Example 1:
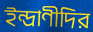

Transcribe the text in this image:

ইন্দ্রাণীদির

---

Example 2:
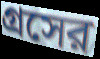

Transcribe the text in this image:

গ্রসের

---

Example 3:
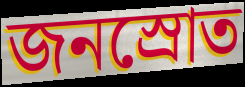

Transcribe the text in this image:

জনস্রোত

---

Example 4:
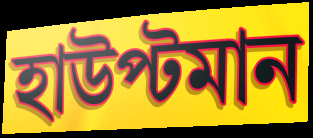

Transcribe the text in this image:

হাউপ্টমান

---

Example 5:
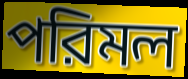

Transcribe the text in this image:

পরিমল